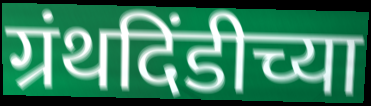
ग्रंथदिंडीच्या